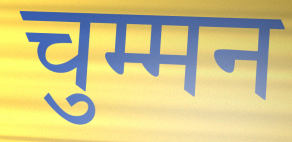
चुम्मन